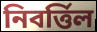
নিবর্ত্তিল